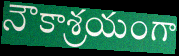
నౌకాశ్రయంగా